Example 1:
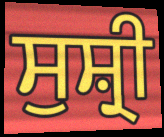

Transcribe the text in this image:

ਸੁਸ਼੍ਰੀ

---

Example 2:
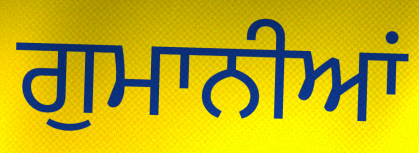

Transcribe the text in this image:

ਗੁਮਾਨੀਆਂ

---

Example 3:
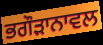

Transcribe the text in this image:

ਭਗੌੜਾਨਾਵਲ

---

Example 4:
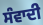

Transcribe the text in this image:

ਸੰਵਾਦੀ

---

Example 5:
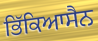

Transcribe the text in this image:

ਭਿੱਕਿਆਸੈਨ